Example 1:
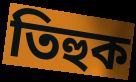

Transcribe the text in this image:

তিহুক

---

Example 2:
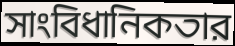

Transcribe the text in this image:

সাংবিধানিকতার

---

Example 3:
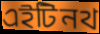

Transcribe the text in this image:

এইটিনথ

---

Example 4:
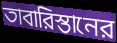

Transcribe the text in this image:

তাবারিস্তানের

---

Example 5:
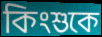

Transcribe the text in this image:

কিংশুকে